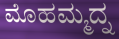
ಮೊಹಮ್ಮದ್ನ